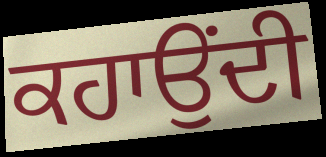
ਕਹਾਉਂਦੀ